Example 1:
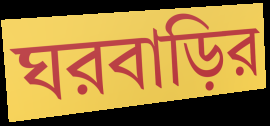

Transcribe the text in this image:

ঘরবাড়ির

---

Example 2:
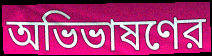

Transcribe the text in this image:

অভিভাষণের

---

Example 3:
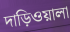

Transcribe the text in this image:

দাড়িওয়ালা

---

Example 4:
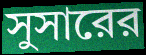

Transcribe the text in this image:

সুসারের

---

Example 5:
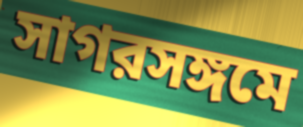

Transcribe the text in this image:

সাগরসঙ্গমে